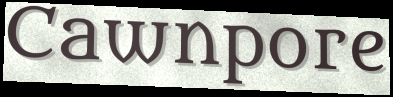
Cawnpore